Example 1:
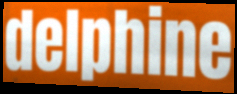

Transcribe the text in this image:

delphine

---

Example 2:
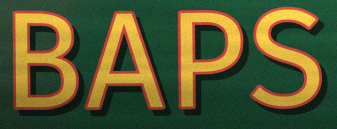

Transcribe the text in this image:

BAPS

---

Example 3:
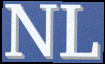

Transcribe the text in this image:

NL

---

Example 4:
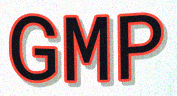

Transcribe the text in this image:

GMP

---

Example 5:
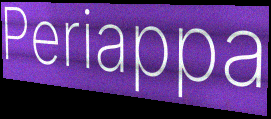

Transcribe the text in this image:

Periappa